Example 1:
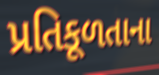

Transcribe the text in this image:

પ્રતિકૂળતાના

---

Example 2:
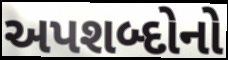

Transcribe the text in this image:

અપશબ્દોનો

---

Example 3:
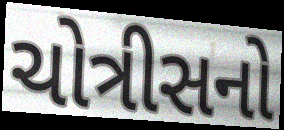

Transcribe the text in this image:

ચોત્રીસનો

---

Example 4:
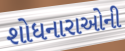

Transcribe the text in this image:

શોધનારાઓની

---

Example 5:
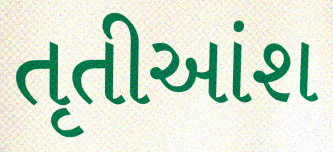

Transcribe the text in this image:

તૃતીઆંશ